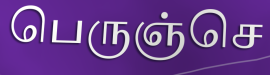
பெருஞ்செ